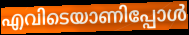
എവിടെയാണിപ്പോൾ